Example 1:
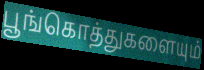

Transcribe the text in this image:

பூங்கொத்துகளையும்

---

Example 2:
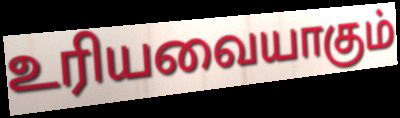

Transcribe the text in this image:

உரியவையாகும்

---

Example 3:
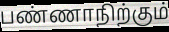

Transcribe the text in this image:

பண்ணாநிற்கும்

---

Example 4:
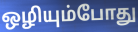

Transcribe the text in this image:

ஒழியும்போது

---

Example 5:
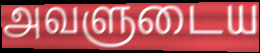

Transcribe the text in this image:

அவளுடைய